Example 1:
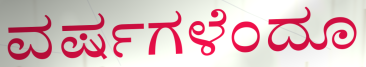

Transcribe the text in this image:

ವರ್ಷಗಳೆಂದೂ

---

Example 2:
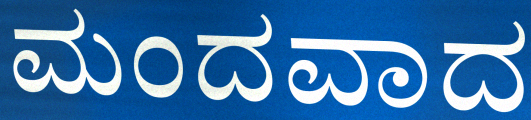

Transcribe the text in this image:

ಮಂದವಾದ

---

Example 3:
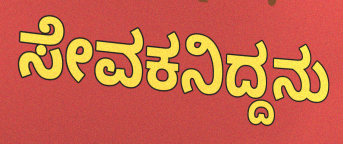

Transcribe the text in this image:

ಸೇವಕನಿದ್ದನು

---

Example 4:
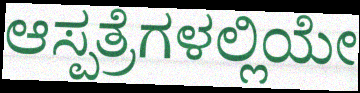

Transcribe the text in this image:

ಆಸ್ಪತ್ರೆಗಳಲ್ಲಿಯೇ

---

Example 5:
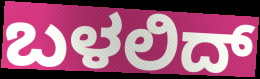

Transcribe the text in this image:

ಬಳಲಿದ್